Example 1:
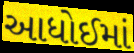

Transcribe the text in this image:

આધોઈમાં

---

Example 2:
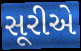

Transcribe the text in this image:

સૂરીએ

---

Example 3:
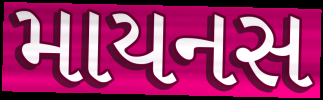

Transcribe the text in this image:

માયનસ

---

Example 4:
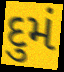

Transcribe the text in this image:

દુમં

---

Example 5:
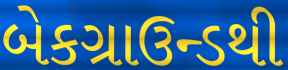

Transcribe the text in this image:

બેકગ્રાઉન્ડથી